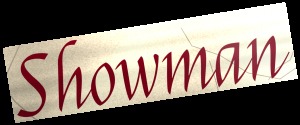
Showman